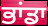
ਭਾਂਡਾ